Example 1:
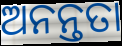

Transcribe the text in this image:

ଅନନ୍ତତା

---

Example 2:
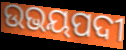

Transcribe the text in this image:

ଉଭୟପଦୀ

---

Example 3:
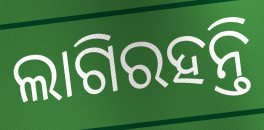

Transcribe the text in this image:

ଲାଗିରହନ୍ତି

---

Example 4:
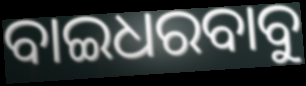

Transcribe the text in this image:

ବାଇଧରବାବୁ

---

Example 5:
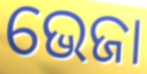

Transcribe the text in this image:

ଭେଜା